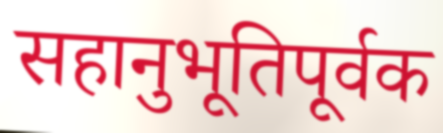
सहानुभूतिपूर्वक